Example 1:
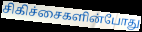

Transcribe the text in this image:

சிகிச்சைகளின்போது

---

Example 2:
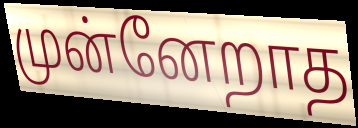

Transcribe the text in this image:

முன்னேறாத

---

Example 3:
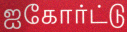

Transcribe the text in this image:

ஐகோர்ட்டு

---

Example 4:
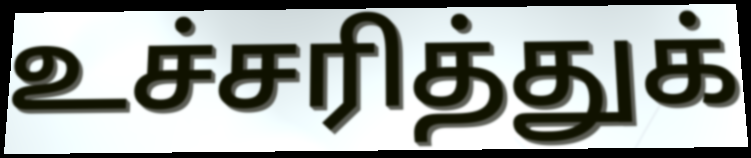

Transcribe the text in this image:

உச்சரித்துக்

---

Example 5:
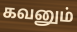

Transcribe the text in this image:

கவனும்